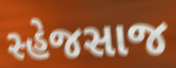
સ્હેજસાજ